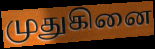
முதுகினை